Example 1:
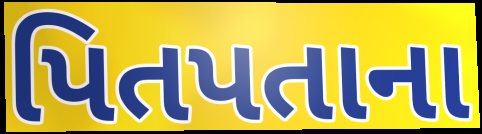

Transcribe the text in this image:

પિતપતાના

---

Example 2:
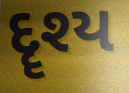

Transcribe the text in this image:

દૄશ્ય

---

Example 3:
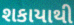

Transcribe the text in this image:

શકાયાથી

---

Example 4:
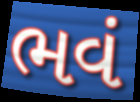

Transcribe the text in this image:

ભવં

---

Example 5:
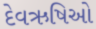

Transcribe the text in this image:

દેવઋષિઓ